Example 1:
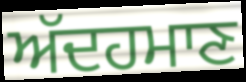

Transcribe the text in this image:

ਅੱਦਹਮਾਣ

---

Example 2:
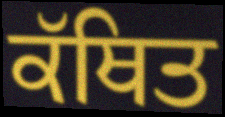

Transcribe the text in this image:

ਕੱਥਿਤ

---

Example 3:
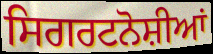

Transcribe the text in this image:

ਸਿਗਰਟਨੋਸ਼ੀਆਂ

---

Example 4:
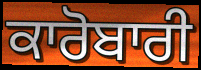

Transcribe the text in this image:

ਕਾਰੋਬਾਰੀ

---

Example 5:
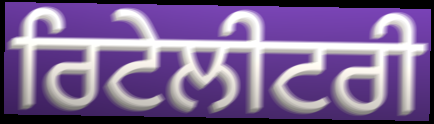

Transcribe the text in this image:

ਰਿਟੇਲੀਟਰੀ